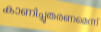
കാണിച്ചുതരണമെന്ന്